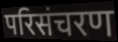
परिसंचरण